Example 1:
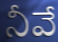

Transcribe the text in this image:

నీవే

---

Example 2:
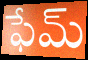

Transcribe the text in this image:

ఫేమ్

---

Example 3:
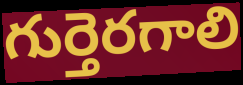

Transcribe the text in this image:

గుర్తెరగాలి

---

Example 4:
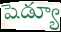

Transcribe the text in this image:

షెడ్యూ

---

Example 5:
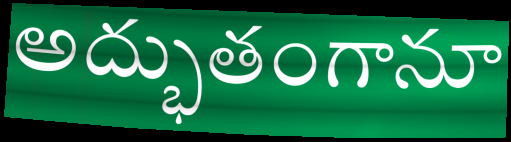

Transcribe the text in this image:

అద్భుతంగానూ